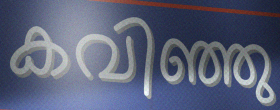
കവിഞ്ഞു